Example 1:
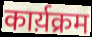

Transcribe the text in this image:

कार्य़क्रम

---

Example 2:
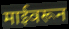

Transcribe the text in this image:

माईवरून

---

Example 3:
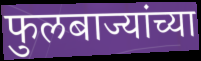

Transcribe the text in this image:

फुलबाज्यांच्या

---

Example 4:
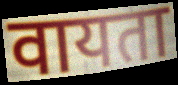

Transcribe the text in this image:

वायता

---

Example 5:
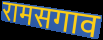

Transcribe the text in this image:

रामसगाव